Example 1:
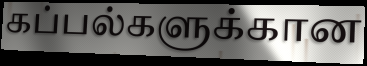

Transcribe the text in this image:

கப்பல்களுக்கான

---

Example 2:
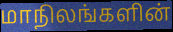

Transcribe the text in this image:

மாநிலங்களின்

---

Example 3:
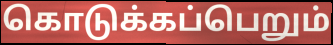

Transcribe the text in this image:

கொடுக்கப்பெறும்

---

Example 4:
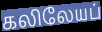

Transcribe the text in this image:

கலிலேயப்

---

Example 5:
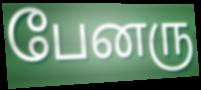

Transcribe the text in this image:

பேனரு